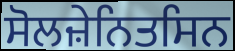
ਸੋਲਜ਼ੇਨਿਤਸਿਨ